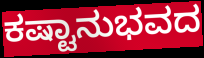
ಕಷ್ಟಾನುಭವದ